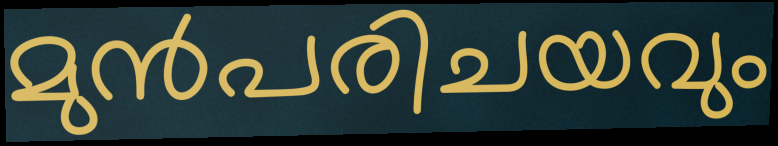
മുൻപരിചയവും